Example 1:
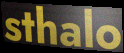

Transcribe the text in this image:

sthalo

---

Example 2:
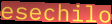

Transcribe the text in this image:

esechilo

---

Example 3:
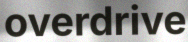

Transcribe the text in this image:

overdrive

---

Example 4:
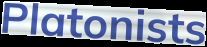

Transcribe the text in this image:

Platonists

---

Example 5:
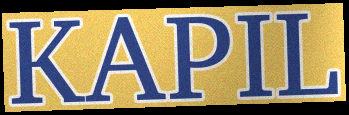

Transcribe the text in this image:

KAPIL